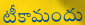
టీకామందు